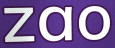
zao